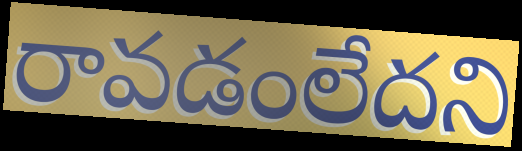
రావడంలేదని